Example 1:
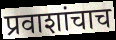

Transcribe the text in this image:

प्रवाशांचाच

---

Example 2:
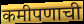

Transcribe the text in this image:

कमीपणाची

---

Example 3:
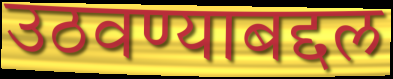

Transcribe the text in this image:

उठवण्याबद्दल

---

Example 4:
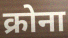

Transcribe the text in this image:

क्रोना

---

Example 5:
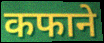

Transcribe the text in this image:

कफाने